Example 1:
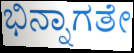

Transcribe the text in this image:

ಭಿನ್ನಾಗತೇ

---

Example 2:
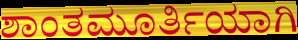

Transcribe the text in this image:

ಶಾಂತಮೂರ್ತಿಯಾಗಿ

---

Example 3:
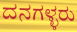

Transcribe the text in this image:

ದನಗಳ್ಳರು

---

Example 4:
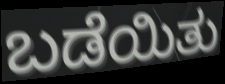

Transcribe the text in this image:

ಬಡೆಯಿತು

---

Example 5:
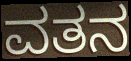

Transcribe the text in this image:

ವತನ